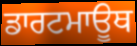
ਡਾਰਟਮਾਊਥ